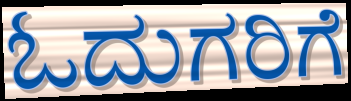
ಓದುಗರಿಗೆ